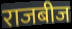
राजबीज